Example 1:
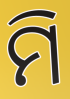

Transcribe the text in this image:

ମି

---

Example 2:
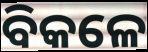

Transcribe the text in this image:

ବିକଳେ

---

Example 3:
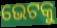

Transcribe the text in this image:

ଭେଟକୁ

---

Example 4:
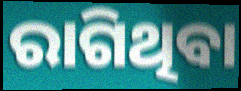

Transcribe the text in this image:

ରାଗିଥିବା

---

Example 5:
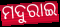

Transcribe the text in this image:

ମଦୁରାଇ